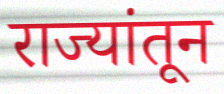
राज्यांतून